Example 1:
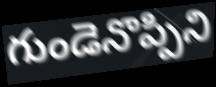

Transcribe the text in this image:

గుండెనొప్పిని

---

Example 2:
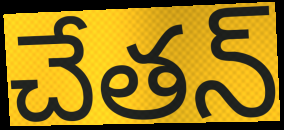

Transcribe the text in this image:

చేతన్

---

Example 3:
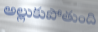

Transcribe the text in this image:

అల్లుకుపోతుంది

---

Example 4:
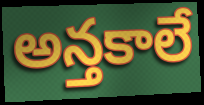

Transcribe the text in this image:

అన్తకాలే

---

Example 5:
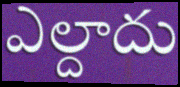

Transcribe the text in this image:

ఎల్దాదు